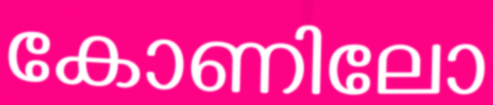
കോണിലോ